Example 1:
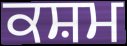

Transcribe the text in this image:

ਕਸ਼ਮ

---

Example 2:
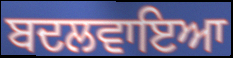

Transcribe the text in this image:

ਬਦਲਵਾਇਆ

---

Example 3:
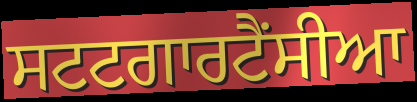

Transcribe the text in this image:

ਸਟਟਗਾਰਟੈਂਸੀਆ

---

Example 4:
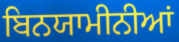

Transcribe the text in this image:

ਬਿਨਯਾਮੀਨੀਆਂ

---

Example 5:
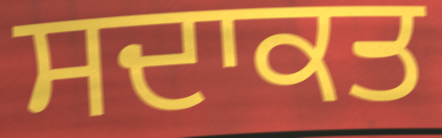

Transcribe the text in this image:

ਸਦਾਕਤ